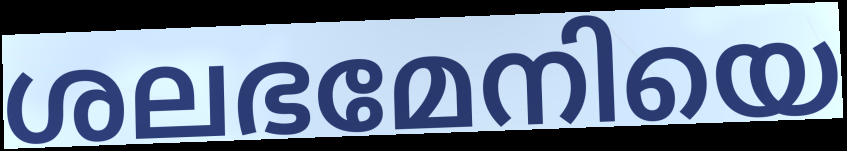
ശലഭമേനിയെ